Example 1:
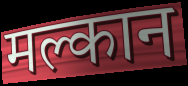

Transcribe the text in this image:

मल्कान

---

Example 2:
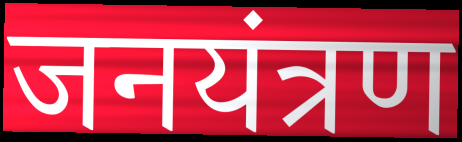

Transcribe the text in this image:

जनयंत्रण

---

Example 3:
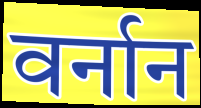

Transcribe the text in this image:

वर्नान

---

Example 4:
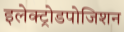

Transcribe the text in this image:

इलेक्ट्रोडपोजिशन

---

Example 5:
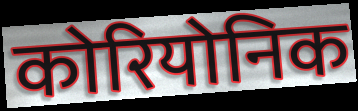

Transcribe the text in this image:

कोरियोनिक